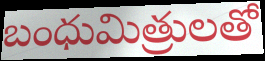
బంధుమిత్రులతో